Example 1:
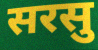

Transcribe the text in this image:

सरसु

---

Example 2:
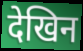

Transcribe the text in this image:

देखिन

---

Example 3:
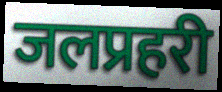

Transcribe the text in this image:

जलप्रहरी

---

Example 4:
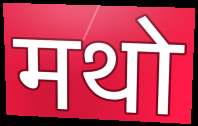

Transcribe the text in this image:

मथो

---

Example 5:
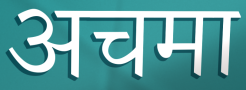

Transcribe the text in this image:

अचमा